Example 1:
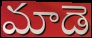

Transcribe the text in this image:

మాడె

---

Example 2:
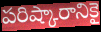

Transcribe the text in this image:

పరిష్కారానికై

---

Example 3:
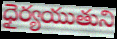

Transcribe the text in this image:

ధైర్యయుతుని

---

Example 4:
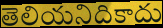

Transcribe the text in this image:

తెలియనిదికాదు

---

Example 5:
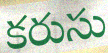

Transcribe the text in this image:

కరుసు